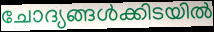
ചോദ്യങ്ങൾക്കിടയിൽ